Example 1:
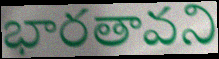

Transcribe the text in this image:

భారతావని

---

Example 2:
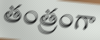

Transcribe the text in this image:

తంత్రంగా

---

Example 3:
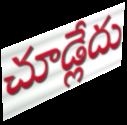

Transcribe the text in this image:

చూడ్లేదు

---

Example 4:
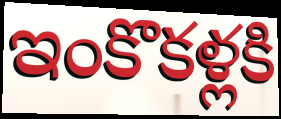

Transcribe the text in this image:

ఇంకొకళ్లకి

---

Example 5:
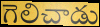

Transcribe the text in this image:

గెలిచాడు